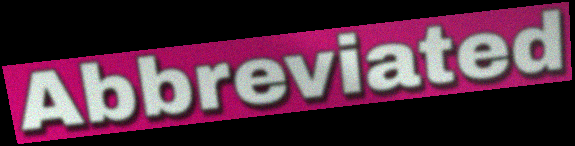
Abbreviated